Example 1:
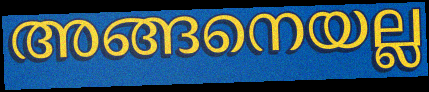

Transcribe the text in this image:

അങ്ങനെയല്ല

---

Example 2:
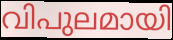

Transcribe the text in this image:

വിപുലമായി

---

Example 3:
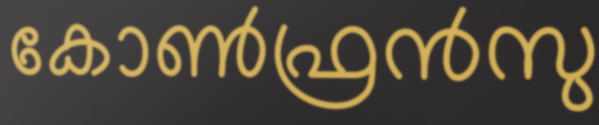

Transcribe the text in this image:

കോൺഫ്രൻസു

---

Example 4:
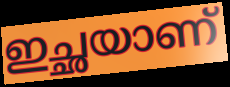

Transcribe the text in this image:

ഇച്ഛയാണ്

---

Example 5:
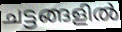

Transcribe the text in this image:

ചട്ടങ്ങളിൽ